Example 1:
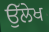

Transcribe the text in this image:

ਉੱਲੇਖ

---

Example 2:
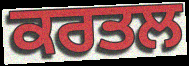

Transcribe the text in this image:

ਕਰਤਲ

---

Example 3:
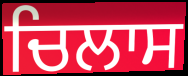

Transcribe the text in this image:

ਚਿਲਾਸ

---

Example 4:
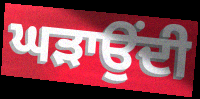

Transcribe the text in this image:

ਘੜਾਉਂਦੀ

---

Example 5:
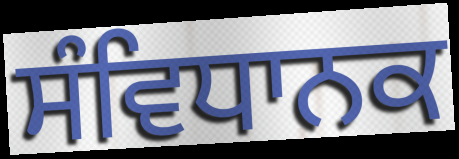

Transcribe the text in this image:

ਸੰਵਿਧਾਨਕ